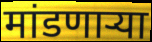
मांडणाऱ्या